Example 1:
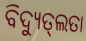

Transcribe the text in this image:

ବିଦ୍ୟୁତ୍‌ଲତା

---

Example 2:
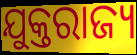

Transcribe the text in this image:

ଯୁକ୍ତରାଜ୍ୟ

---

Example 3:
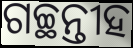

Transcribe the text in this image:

ଗଚ୍ଛନ୍ତୀହ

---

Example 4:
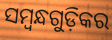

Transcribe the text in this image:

ସମ୍ବନ୍ଧଗୁଡ଼ିକର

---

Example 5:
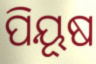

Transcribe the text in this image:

ପିୟୂଷ